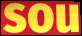
sou